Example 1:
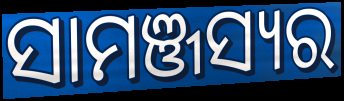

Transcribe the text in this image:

ସାମଞ୍ଜସ୍ୟର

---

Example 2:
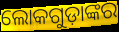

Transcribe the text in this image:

ଲୋକଗୁଡ଼ାଙ୍କର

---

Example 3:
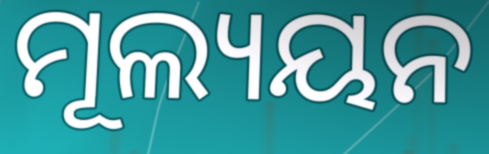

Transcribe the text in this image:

ମୂଲ୍ୟୟନ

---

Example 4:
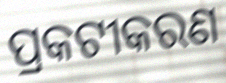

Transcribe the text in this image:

ପ୍ରକଟୀକରଣ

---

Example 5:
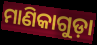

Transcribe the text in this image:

ମାଣିକାଗୁଡ଼ା